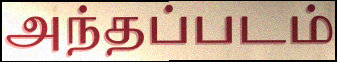
அந்தப்படம்